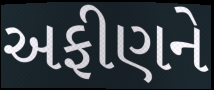
અફીણને